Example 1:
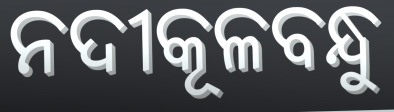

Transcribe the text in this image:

ନଦୀକୂଳବନ୍ଧୁ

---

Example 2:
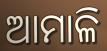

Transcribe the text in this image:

ଆମାଳି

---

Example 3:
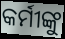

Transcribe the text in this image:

କର୍ମୀଙ୍କୁ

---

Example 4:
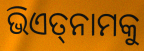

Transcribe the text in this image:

ଭିଏତ୍‌ନାମକୁ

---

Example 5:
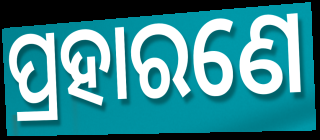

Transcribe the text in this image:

ପ୍ରହାରଣେ